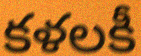
కళలకీ